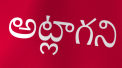
అట్లాగని